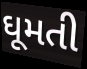
ઘૂમતી